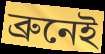
ব্রুনেই